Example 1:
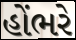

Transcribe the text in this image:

હોંભરે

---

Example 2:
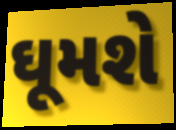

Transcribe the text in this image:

ઘૂમશે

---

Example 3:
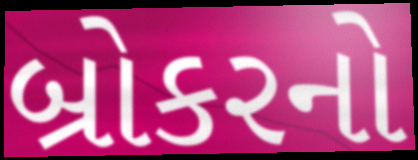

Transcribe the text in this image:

બ્રોકરનો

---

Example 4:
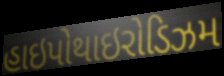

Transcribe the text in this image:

હાઇપોથાઇરોડિઝમ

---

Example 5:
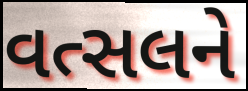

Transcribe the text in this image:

વત્સલને